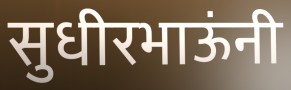
सुधीरभाऊंनी